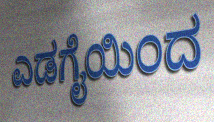
ಎಡಗೈಯಿಂದ